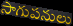
సాగుపనులు